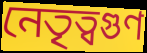
নেতৃত্বগুণ